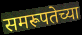
समरूपतेच्या